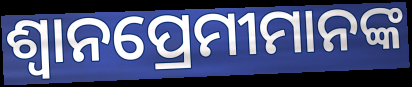
ଶ୍ଵାନପ୍ରେମୀମାନଙ୍କ